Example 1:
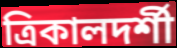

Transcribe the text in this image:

ত্রিকালদর্শী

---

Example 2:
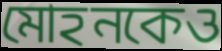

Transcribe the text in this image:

মোহনকেও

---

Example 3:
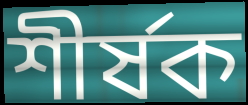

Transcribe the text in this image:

শীর্ষক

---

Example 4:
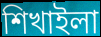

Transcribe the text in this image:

শিখাইলা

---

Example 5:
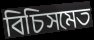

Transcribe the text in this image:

বিচিসমেত